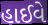
હાઈવે